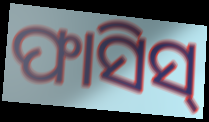
ଫାସିସ୍